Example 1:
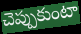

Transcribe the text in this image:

చెప్పుకుంటా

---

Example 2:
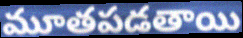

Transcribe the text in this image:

మూతపడతాయి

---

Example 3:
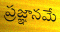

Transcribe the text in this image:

ప్రజ్ఞానమే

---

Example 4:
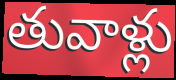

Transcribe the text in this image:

తువాళ్లు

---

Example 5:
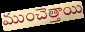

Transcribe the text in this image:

ముంచెత్తాయి